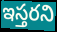
ఇస్తరని